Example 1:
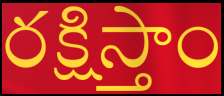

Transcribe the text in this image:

రక్షిస్తాం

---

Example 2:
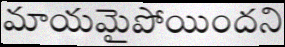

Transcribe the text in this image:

మాయమైపోయిందని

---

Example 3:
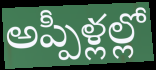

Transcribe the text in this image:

అప్పీళ్లల్లో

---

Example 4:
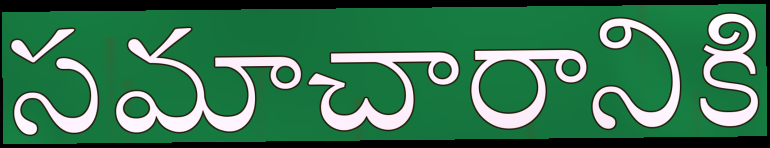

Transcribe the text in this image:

సమాచారానికి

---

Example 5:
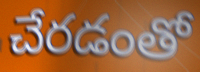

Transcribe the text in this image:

చేరడంతో